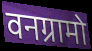
वनग्रामो